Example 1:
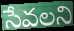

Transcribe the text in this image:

సేవలని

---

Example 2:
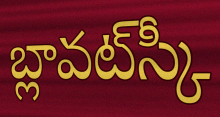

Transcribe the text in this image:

బ్లావట్‌స్కీ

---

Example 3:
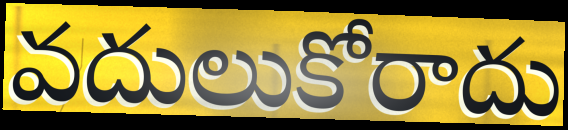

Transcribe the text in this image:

వదులుకోరాదు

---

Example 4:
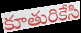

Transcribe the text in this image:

కూతురికేసి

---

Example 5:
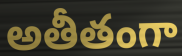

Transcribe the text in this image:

అతీతంగా